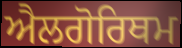
ਐਲਗੋਰਿਥਮ